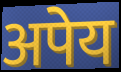
अपेय